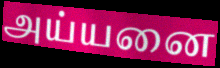
அய்யனை